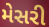
મેસરી